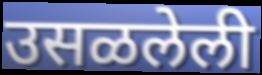
उसळलेली